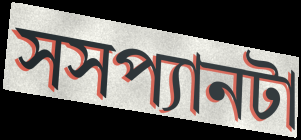
সসপ্যানটা